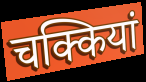
चक्कियां